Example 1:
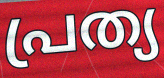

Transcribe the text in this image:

പ്രത്യ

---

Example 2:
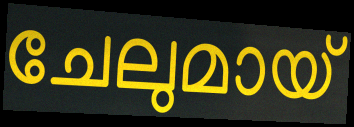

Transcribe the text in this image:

ചേലുമായ്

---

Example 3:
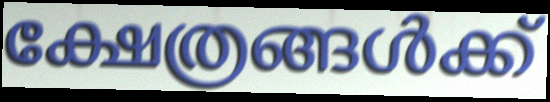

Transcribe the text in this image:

ക്ഷേത്രങ്ങൾക്ക്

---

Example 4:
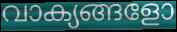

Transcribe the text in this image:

വാക്യങ്ങളോ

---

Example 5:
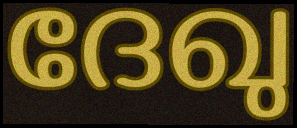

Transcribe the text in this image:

ദേഖു